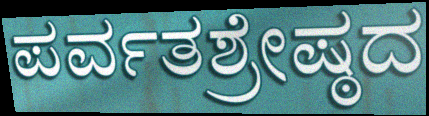
ಪರ್ವತಶ್ರೇಷ್ಠದ